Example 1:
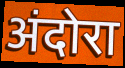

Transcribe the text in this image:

अंदोरा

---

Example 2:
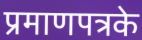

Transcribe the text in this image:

प्रमाणपत्रके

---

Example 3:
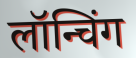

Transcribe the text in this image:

लॉन्चिंग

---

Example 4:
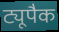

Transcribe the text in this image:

ट्यूपैक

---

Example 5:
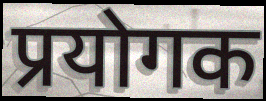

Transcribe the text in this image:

प्रयोगक